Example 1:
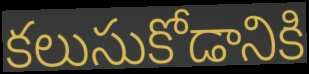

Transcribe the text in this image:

కలుసుకోడానికి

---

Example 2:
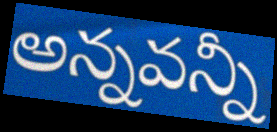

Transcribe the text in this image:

అన్నవన్నీ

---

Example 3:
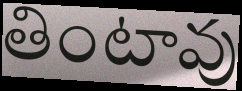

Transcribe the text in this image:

తింటావు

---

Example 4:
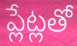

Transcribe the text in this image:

ప్లేట్లతో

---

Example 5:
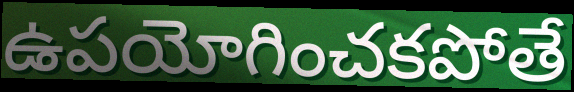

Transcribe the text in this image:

ఉపయోగించకపోతే